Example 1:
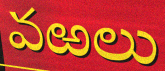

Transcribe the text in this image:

వఱలు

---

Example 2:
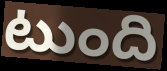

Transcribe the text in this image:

టుంది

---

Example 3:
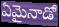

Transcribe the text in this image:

ఏమైనాడో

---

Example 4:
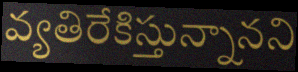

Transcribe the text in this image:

వ్యతిరేకిస్తున్నానని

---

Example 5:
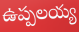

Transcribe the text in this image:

ఉప్పలయ్య